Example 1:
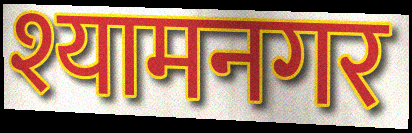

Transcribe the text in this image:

श्यामनगर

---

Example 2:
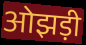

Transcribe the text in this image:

ओझड़ी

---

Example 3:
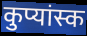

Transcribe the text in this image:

कुप्यांस्क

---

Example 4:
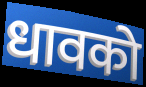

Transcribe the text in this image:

धावको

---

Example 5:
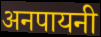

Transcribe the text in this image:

अनपायनी